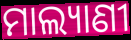
ମାଲ୍ୟାଣୀ